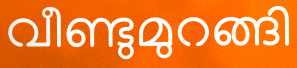
വീണ്ടുമുറങ്ങി